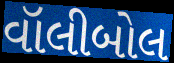
વૉલીબોલ